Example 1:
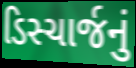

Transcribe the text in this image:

ડિસ્ચાર્જનું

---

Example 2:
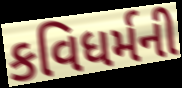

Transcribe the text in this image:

કવિધર્મની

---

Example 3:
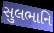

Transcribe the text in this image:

સુલભાનિ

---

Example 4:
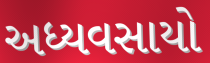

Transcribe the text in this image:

અધ્યવસાયો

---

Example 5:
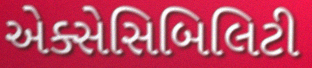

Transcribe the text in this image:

એક્સેસિબિલિટી